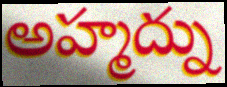
అహ్మద్ను